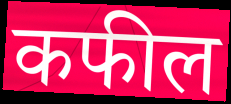
कफील